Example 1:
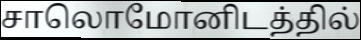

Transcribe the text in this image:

சாலொமோனிடத்தில்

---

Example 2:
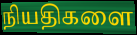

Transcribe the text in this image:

நியதிகளை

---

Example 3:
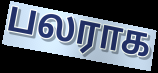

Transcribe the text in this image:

பலராக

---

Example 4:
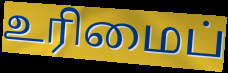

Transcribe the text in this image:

உரிமைப்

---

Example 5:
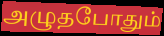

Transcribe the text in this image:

அழுதபோதும்